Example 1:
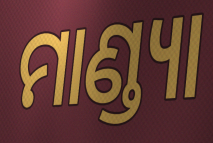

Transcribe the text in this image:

ମାଣ୍ଡ୍ୟା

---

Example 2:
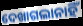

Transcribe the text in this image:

ଦେଖାଗଲାନାହିଁ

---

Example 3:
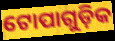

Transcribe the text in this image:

ଟୋପାଗୁଡ଼ିକ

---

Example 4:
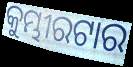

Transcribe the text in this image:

କୁମ୍ଭୀରଟାର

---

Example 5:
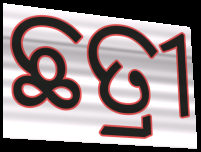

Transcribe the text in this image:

ଛତ୍ରୀ